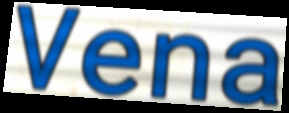
Vena